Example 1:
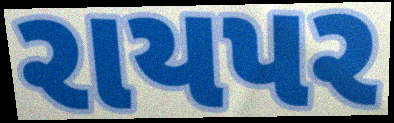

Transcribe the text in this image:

રાયપર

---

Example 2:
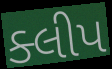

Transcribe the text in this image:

ક્લીપ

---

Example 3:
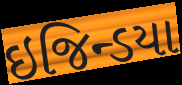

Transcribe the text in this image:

ઇજિન્ડયા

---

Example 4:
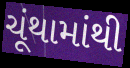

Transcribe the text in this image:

ચૂંથામાંથી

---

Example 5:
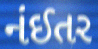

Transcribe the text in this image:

નંઈતર